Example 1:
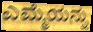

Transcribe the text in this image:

ಎಮ್ಮೆಯನ್ನು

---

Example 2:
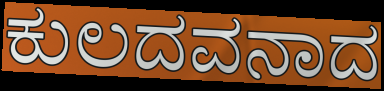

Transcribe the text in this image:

ಕುಲದವನಾದ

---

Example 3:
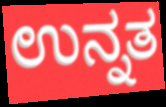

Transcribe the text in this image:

ಉನ್ನತ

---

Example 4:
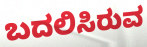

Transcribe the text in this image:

ಬದಲಿಸಿರುವ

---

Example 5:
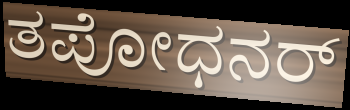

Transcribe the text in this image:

ತಪೋಧನರ್